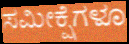
ಸಮೀಕ್ಷೆಗಳೂ